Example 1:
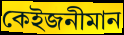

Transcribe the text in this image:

কেইজনীমান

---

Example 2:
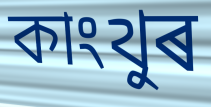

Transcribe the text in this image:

কাংথুৰ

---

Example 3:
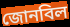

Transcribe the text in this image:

জোনবিল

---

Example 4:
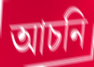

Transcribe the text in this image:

আচনি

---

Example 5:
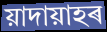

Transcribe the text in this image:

য়াদায়াহৰ